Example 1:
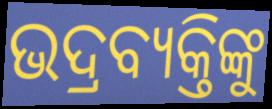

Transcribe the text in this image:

ଭଦ୍ରବ୍ୟକ୍ତିଙ୍କୁ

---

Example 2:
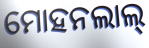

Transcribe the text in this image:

ମୋହନଲାଲ୍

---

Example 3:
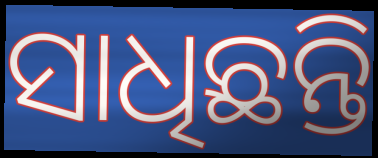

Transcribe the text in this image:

ସାଧିଛନ୍ତି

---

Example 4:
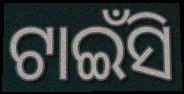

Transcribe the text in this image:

ଟାଇଁସି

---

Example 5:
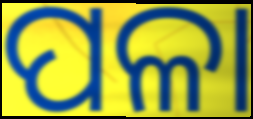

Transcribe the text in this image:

ପଳା